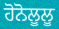
ਹੋਨੋਲੂਲੂ